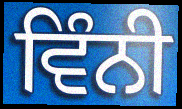
ਵਿੰਨੀ